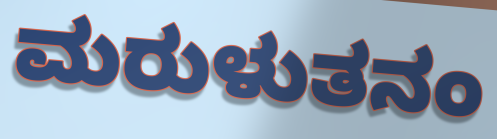
ಮರುಳುತನಂ